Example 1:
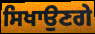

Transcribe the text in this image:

ਸਿਖਾਉਣਗੇ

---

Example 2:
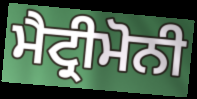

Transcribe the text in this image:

ਮੈਟ੍ਰੀਮੋਨੀ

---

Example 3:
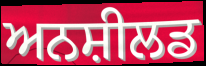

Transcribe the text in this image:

ਅਨਸ਼ੀਲਡ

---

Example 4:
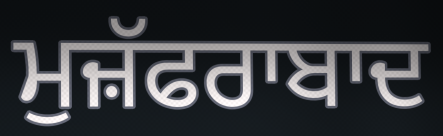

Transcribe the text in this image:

ਮੁਜ਼ੱਫਰਾਬਾਦ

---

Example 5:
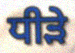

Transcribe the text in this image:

ਧੀੜੇ